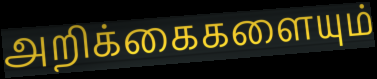
அறிக்கைகளையும்